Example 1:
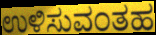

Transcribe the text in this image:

ಉಳಿಸುವಂತಹ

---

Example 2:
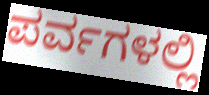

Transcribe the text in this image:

ಪರ್ವಗಳಲ್ಲಿ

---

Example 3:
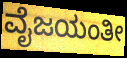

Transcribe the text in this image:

ವೈಜಯಂತೀ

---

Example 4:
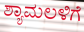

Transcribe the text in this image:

ಶ್ಯಾಮಲಳಿಗೆ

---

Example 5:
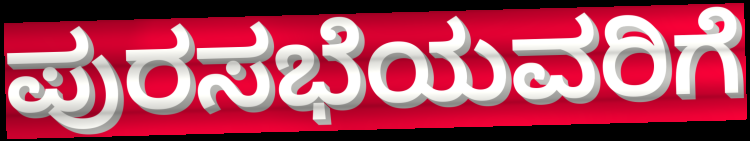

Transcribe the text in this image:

ಪುರಸಭೆಯವರಿಗೆ